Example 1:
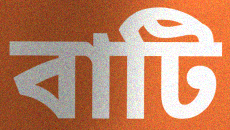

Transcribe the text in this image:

বাটি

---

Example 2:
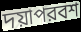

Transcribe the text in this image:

দয়াপরবশ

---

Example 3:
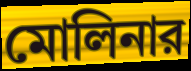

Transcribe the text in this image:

মোলিনার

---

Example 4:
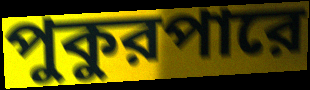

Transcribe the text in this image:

পুকুরপারে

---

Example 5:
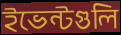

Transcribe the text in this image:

ইভেন্টগুলি